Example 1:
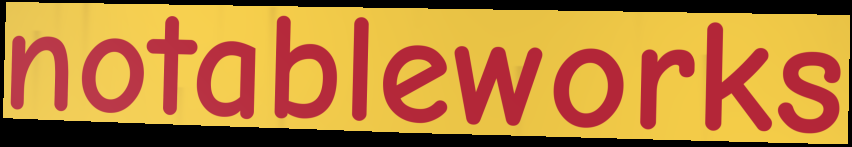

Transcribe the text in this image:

notableworks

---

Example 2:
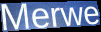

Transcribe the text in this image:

Merwe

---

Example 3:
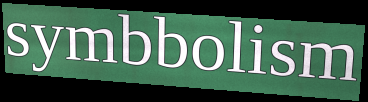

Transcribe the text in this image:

symbbolism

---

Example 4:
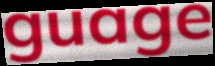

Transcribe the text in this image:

guage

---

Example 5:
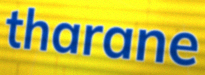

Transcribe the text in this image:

tharane